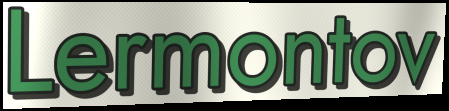
Lermontov